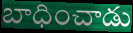
బాధించాడు